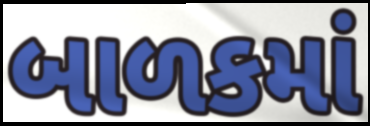
બાળકમાં